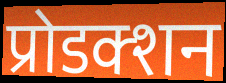
प्रोडक्‍शन